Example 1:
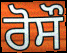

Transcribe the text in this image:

ਰੋਸੌ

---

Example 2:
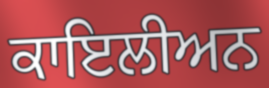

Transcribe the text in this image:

ਕਾਇਲੀਅਨ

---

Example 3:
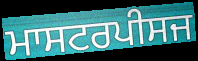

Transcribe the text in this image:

ਮਾਸਟਰਪੀਸਜ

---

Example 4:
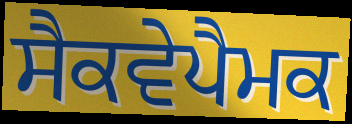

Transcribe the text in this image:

ਸੈਕਵੇਪੈਮਕ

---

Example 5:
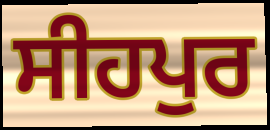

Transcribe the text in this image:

ਸੀਹਪੁਰ